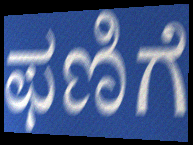
ಫಣಿಗೆ